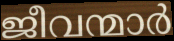
ജീവന്മാർ